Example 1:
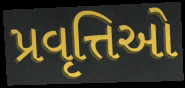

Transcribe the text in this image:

પ્રવૃત્તિઓ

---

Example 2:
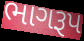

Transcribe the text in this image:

ભાગરૂપ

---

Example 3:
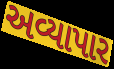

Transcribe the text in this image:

અવ્યાપાર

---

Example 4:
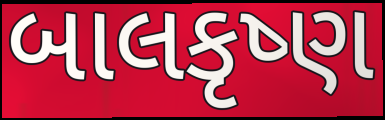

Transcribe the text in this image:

બાલકૃષ્ણ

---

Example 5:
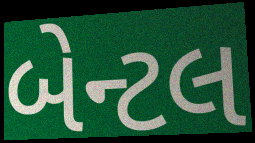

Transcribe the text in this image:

બેન્ટલ